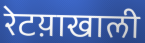
रेटय़ाखाली